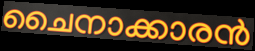
ചൈനാക്കാരൻ